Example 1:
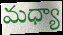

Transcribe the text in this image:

మధ్యా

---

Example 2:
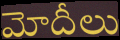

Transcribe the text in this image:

మోదీలు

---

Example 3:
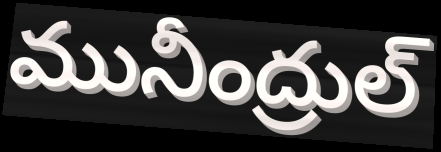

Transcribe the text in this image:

మునీంద్రుల్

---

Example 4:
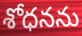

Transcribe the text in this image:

శోధనను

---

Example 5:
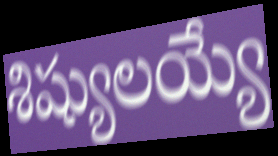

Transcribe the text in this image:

శిష్యులయ్యే